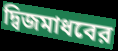
দ্বিজমাধবের